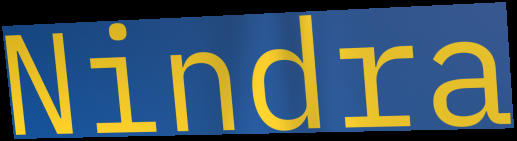
Nindra